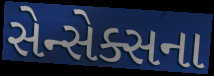
સેન્સેક્સના